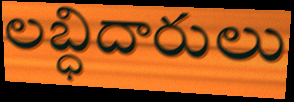
లబ్ధిదారులు